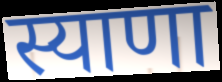
स्याणा